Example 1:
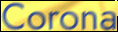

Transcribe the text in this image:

Corona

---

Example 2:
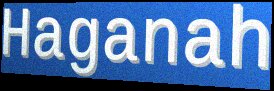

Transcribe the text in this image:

Haganah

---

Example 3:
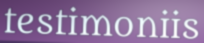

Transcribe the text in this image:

testimoniis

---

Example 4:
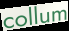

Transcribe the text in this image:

collum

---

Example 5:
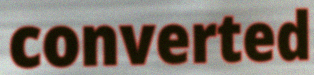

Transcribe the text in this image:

converted